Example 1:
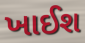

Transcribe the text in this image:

ખાઈશ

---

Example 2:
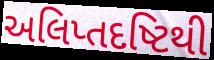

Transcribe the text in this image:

અલિપ્તદષ્ટિથી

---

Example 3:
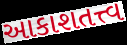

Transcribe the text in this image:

આકાશતત્ત્વ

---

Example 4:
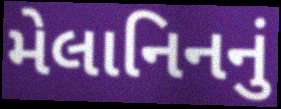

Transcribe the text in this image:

મેલાનિનનું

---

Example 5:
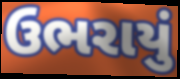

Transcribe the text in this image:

ઉભરાયું